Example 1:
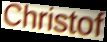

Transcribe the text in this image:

Christof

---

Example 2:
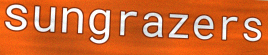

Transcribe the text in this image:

sungrazers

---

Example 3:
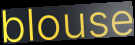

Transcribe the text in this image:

blouse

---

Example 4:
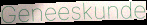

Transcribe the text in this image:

Geneeskunde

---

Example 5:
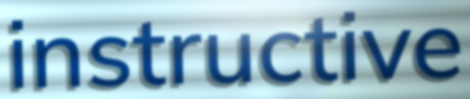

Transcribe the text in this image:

instructive